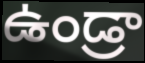
ఉండ్రా